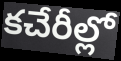
కచేరీల్లో